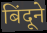
बिंदूने